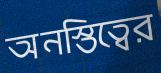
অনস্তিত্বের